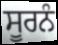
ਸੂਰਨੰ